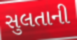
સુલતાની